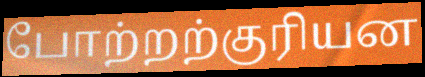
போற்றற்குரியன